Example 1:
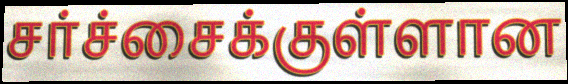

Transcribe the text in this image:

சர்ச்சைக்குள்ளான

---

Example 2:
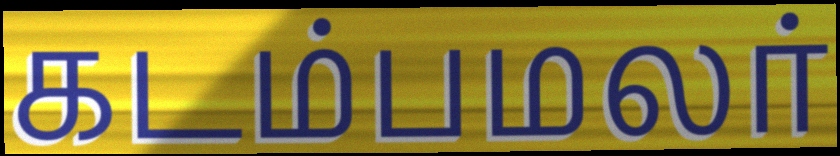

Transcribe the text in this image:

கடம்பமலர்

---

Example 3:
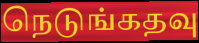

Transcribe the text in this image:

நெடுங்கதவு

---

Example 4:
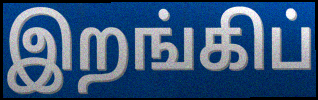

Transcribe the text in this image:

இறங்கிப்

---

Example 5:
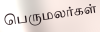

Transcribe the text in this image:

பெருமலர்கள்